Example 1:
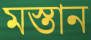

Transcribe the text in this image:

মস্তান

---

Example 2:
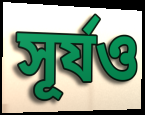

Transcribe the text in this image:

সূর্যও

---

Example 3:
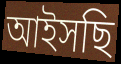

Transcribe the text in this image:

আইসছি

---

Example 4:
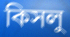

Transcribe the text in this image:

কিসলু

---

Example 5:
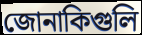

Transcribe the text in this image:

জোনাকিগুলি